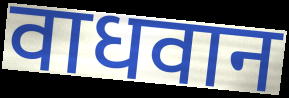
वाधवान